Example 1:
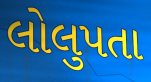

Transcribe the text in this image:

લોલુપતા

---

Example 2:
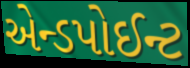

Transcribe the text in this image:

એન્ડપોઈન્ટ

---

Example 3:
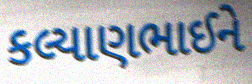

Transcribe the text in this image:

કલ્યાણભાઈને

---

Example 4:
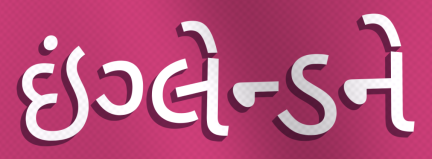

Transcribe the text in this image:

ઇંગ્લેન્ડને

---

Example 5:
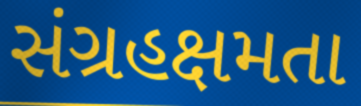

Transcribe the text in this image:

સંગ્રહક્ષમતા